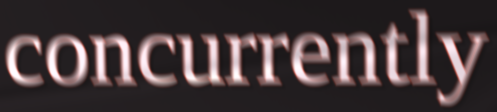
concurrently